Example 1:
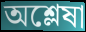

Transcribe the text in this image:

অশ্লেষা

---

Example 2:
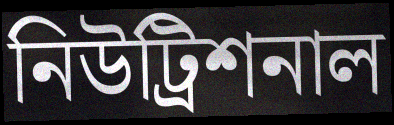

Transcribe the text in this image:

নিউট্রিশনাল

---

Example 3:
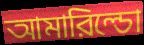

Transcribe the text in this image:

আমারিল্ডো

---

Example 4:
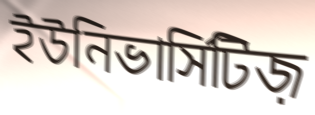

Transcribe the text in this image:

ইউনিভার্সিটিজ়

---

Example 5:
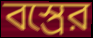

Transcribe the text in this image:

বস্ত্রের